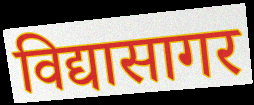
विद्यासागर